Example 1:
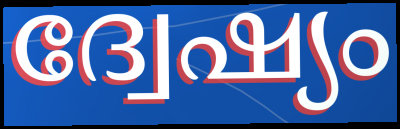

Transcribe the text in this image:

ദ്വേഷ്യം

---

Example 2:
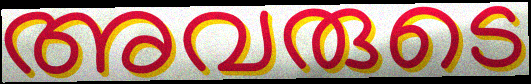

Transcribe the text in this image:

അവരുടെ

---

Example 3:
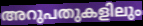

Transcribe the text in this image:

അറുപതുകളിലും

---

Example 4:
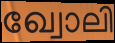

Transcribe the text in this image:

ഖ്വോലി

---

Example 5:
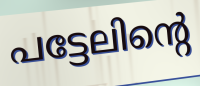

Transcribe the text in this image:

പട്ടേലിന്റെ